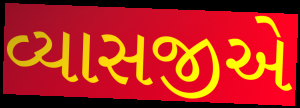
વ્યાસજીએ